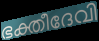
ഭക്തീദേവി